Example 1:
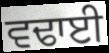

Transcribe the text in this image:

ਵਢਾਈ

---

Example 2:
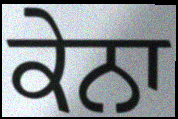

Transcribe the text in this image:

ਕੇਨਾ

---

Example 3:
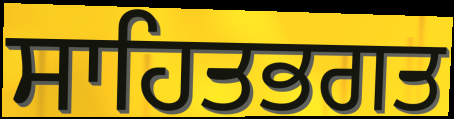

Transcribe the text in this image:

ਸਾਹਿਤਭਗਤ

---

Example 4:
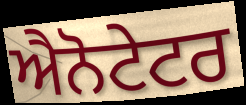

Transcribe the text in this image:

ਐਨੋਟੇਟਰ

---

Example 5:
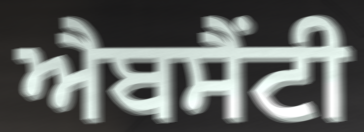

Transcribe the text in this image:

ਐਬਸੈਂਟੀ